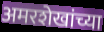
अमरशेखांच्या